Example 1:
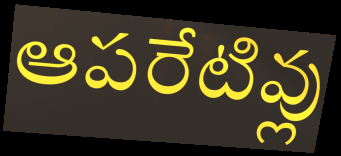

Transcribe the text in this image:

ఆపరేటివ్లు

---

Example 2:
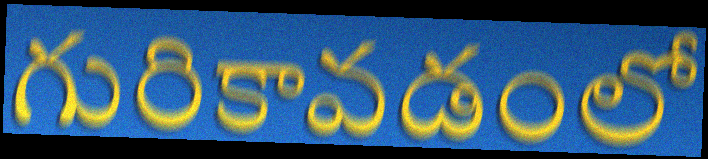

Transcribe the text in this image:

గురికావడంలో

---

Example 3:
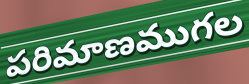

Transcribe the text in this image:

పరిమాణముగల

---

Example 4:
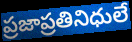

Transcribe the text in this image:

ప్రజాప్రతినిధులే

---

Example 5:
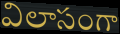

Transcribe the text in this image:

విలాసంగా